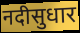
नदीसुधार